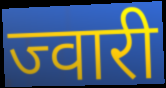
ज्वारी